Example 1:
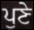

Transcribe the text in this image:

ਪੁਣੇ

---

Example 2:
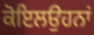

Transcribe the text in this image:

ਕੋਇਲਉਹਨਾਂ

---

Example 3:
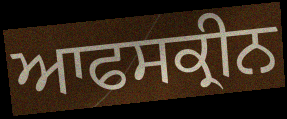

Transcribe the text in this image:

ਆਫਸਕ੍ਰੀਨ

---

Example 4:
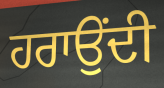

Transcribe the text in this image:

ਹਰਾਉਂਦੀ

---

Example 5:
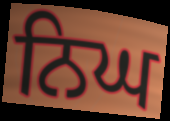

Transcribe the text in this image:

ਨਿਘ